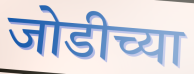
जोडीच्या